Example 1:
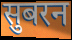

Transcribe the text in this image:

सुबरन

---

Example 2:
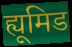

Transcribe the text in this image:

ह्यूमिड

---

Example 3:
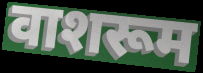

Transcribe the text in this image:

वाशरूम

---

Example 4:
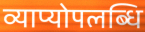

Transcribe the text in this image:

व्याप्योपलब्धि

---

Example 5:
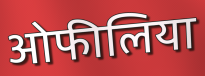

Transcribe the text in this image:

ओफीलिया